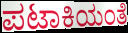
ಪಟಾಕಿಯಂತೆ